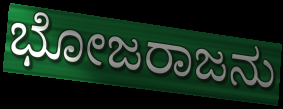
ಭೋಜರಾಜನು